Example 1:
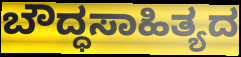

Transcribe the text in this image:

ಬೌದ್ಧಸಾಹಿತ್ಯದ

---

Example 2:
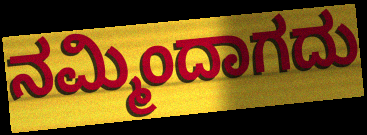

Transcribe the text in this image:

ನಮ್ಮಿಂದಾಗದು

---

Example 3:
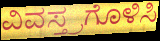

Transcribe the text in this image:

ವಿವಸ್ತ್ರಗೊಳಿಸಿ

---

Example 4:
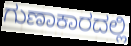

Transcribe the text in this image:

ಗುಣಾಕಾರದಲ್ಲಿ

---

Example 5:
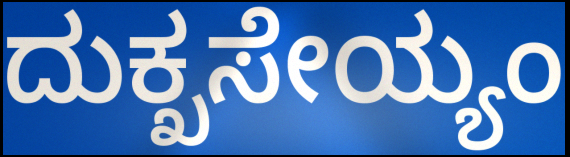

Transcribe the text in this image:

ದುಕ್ಖಸೇಯ್ಯಂ